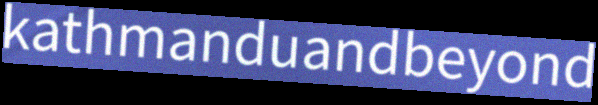
kathmanduandbeyond